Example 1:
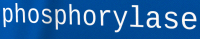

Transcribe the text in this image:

phosphorylase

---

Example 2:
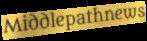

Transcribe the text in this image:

Middlepathnews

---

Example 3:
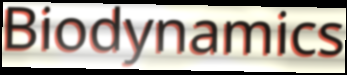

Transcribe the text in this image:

Biodynamics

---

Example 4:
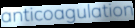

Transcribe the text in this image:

anticoagulation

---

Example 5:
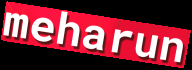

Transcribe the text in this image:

meharun